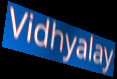
Vidhyalay